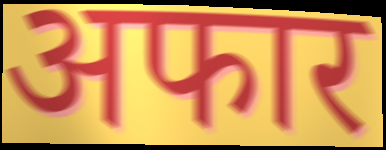
अफार